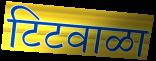
टिटवाळा